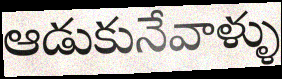
ఆడుకునేవాళ్ళు